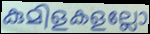
കുമിളകളല്ലോ